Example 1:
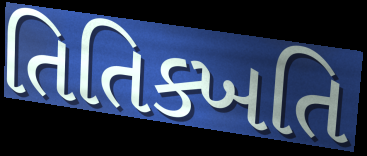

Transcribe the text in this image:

તિતિક્ખતિ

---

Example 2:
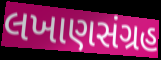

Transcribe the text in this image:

લખાણસંગ્રહ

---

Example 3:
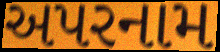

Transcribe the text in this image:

અપરનામ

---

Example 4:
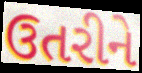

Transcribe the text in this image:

ઉતરીને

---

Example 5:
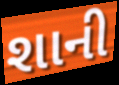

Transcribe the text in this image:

શાની